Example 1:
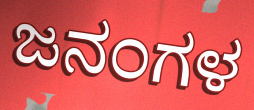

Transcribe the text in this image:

ಜನಂಗಳ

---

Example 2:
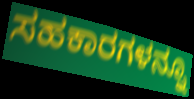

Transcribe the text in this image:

ಸಹಕಾರಗಳನ್ನೂ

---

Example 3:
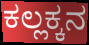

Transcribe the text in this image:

ಕಲ್ಲಕ್ಕನ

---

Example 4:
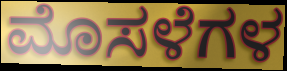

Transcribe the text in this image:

ಮೊಸಳೆಗಳ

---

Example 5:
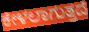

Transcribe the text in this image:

ಕೇಳಲಾಗುತ್ತದೆ